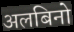
अलबिनो